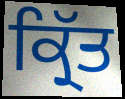
ਕ੍ਰਿੱਤ